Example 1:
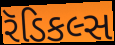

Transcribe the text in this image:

રૅડિકલ્સ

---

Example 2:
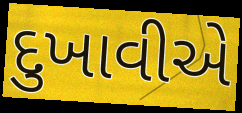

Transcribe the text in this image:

દુખાવીએ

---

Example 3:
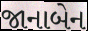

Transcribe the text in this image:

જાનાબેન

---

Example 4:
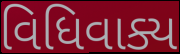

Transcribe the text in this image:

વિધિવાક્ય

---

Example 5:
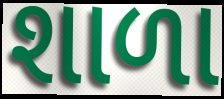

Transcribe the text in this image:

શાળા